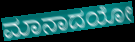
ಮಾನಾದಯೋ